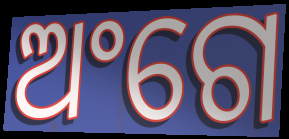
ଅଂଗେ